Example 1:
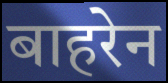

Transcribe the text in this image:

बाहरेन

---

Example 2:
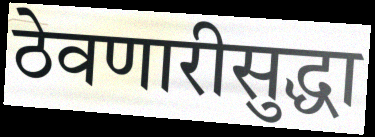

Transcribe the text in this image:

ठेवणारीसुद्धा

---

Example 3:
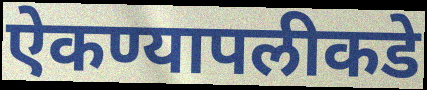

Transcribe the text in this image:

ऐकण्यापलीकडे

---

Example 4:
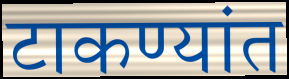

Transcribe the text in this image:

टाकण्यांत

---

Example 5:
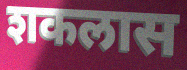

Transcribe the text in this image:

शकलास